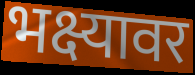
भक्ष्यावर